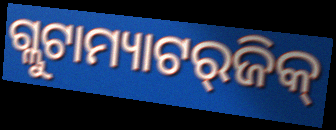
ଗ୍ଲୁଟାମ୍ୟାଟର୍‌ଜିକ୍